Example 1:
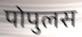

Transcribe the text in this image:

पोपुलस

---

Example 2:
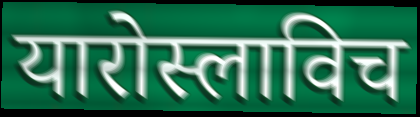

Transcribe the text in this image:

यारोस्लाविच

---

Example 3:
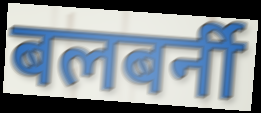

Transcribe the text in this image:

बलबर्नी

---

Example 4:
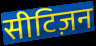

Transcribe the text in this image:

सीटिज़न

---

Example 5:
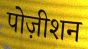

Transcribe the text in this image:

पोज़ीशन